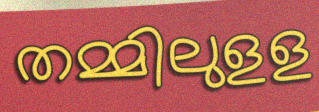
തമ്മിലുളള